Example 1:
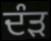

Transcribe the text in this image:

ਦੰੜ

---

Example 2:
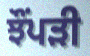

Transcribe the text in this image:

ਝੌਂਪੜੀ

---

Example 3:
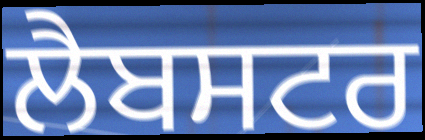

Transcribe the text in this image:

ਲੈਬਸਟਰ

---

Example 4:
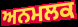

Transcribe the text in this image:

ਅਨਮਲਕ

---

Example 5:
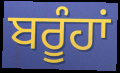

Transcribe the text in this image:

ਬਰੂੰਹਾਂ